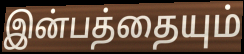
இன்பத்தையும்